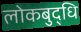
लोकबुद्धि